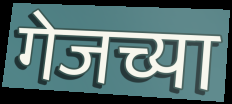
गेजच्या